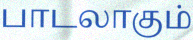
பாடலாகும்